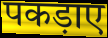
पकड़ाए